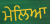
ਮੇਲਿਆ